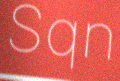
Sqn